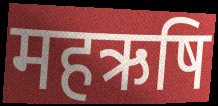
महऋषि